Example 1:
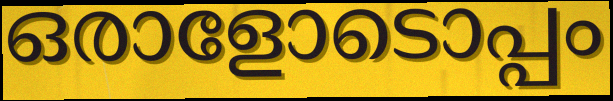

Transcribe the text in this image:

ഒരാളോടൊപ്പം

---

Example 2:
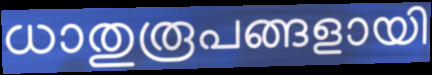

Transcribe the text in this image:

ധാതുരൂപങ്ങളായി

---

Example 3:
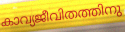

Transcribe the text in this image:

കാവ്യജീവിതത്തിനു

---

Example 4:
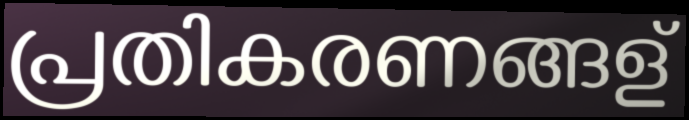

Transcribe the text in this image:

പ്രതികരണങ്ങള്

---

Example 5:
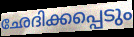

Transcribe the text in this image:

ഛേദിക്കപ്പെടും